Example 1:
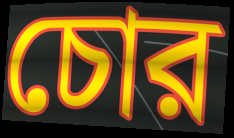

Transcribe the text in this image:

চোর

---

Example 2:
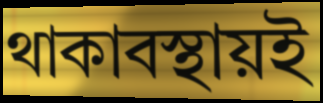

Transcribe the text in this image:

থাকাবস্থায়ই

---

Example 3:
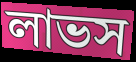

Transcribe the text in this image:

লাভস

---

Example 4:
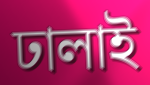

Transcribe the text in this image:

ঢালাই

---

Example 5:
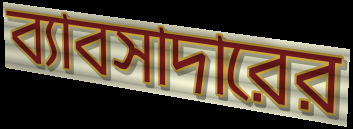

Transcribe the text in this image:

ব্যাবসাদারের